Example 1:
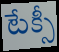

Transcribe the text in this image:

టేక్సీ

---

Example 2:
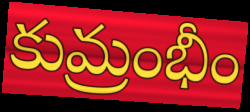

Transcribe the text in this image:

కుమ్రంభీం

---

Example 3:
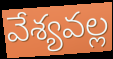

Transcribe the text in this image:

వేశ్యవల్ల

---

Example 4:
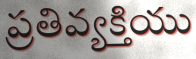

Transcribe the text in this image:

ప్రతివ్యక్తియు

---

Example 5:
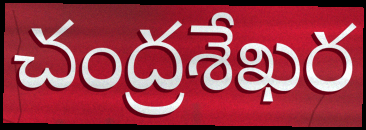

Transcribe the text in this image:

చంద్రశేఖర